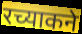
रच्याकने